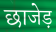
छाजेड़